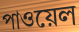
পাওয়েল